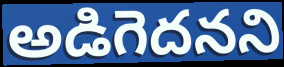
అడిగెదనని